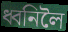
ধ্বনিলৈ